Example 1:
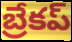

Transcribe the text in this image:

బ్రేకప్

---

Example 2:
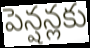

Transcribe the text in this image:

పెన్షన్లకు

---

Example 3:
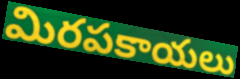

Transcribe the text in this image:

మిరపకాయలు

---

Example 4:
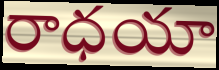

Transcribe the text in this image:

రాధయా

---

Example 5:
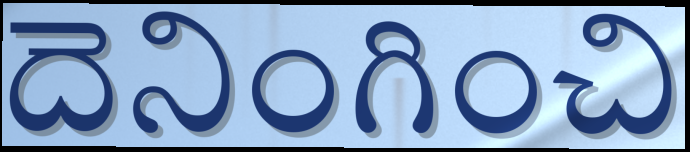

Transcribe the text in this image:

దెనింగించి